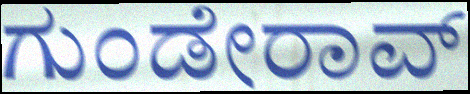
ಗುಂಡೇರಾವ್